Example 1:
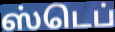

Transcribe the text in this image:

ஸ்டெப்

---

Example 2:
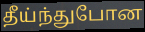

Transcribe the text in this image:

தீய்ந்துபோன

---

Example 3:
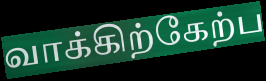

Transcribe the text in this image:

வாக்கிற்கேற்ப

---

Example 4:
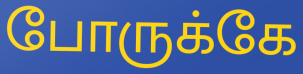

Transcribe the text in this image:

போருக்கே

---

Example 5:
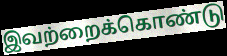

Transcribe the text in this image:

இவற்றைக்கொண்டு